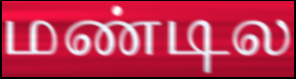
மண்டில